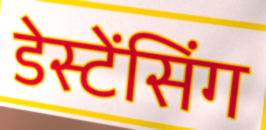
डेस्टेंसिंग